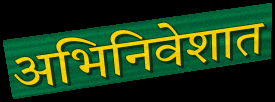
अभिनिवेशात